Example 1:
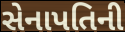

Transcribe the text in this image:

સેનાપતિની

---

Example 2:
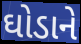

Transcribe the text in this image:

ઘોડાને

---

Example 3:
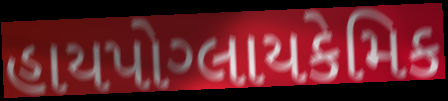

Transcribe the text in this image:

હાયપોગ્લાયકેમિક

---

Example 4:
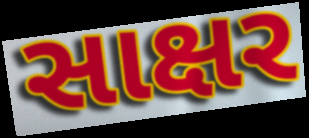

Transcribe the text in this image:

સાક્ષર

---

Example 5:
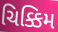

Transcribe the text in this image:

ચિક્કિમ